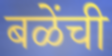
बळेंची